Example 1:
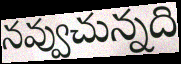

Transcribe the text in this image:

నవ్వుచున్నది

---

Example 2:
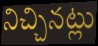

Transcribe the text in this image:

నిచ్చినట్లు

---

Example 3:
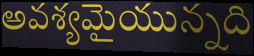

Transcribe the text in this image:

అవశ్యమైయున్నది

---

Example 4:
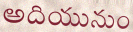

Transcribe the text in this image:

అదియునుం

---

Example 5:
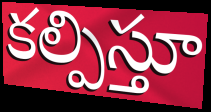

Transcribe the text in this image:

కల్పిస్తూ